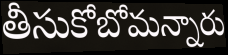
తీసుకోబోమన్నారు